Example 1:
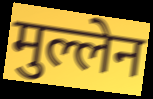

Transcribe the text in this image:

मुल्लेन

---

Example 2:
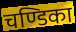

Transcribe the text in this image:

चण्डिका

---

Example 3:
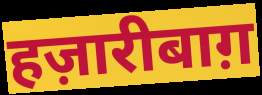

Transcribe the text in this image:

हज़ारीबाग़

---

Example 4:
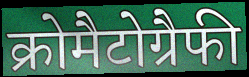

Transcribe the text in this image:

क्रोमैटोग्रैफी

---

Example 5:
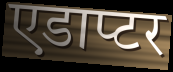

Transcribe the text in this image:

एडाप्टर